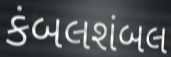
કંબલશંબલ